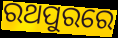
ରଥପୁରରେ